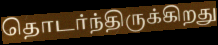
தொடர்ந்திருக்கிறது